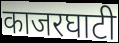
काजरघाटी